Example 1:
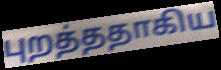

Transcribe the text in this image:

புறத்ததாகிய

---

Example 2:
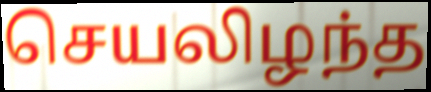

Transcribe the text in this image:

செயலிழந்த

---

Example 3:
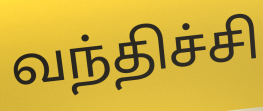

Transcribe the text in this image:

வந்திச்சி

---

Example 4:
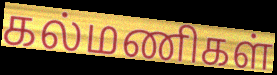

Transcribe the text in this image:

கல்மணிகள்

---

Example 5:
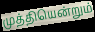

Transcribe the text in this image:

முத்தியென்றும்